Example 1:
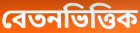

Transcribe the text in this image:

বেতনভিত্তিক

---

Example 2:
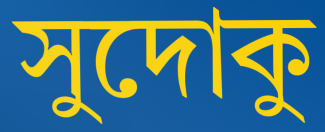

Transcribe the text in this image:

সুদোকু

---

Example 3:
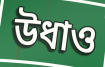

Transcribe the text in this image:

উধাও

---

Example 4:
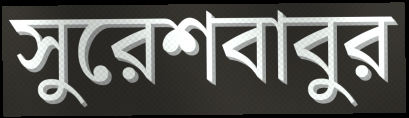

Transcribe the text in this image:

সুরেশবাবুর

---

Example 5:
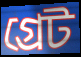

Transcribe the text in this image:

গ্রেট